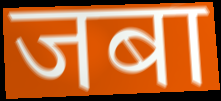
जबा